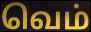
வெம்